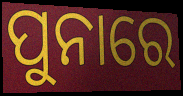
ପୁନାରେ